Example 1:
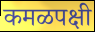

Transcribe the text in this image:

कमळपक्षी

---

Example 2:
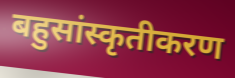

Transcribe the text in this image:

बहुसांस्कृतीकरण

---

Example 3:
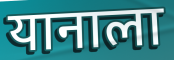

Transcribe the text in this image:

यानाला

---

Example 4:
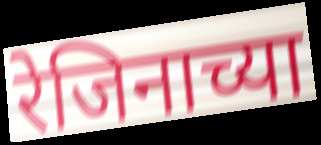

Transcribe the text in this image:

रेजिनाच्या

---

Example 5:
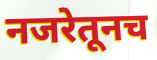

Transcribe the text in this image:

नजरेतूनच